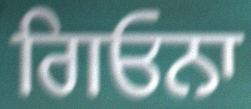
ਗਿਓਨਾ